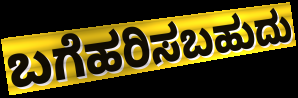
ಬಗೆಹರಿಸಬಹುದು